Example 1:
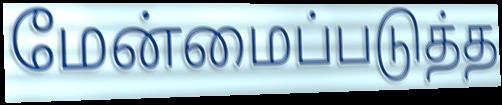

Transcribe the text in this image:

மேன்மைப்படுத்த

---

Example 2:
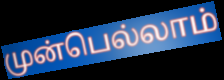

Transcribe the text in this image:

முன்பெல்லாம்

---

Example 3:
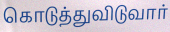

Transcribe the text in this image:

கொடுத்துவிடுவார்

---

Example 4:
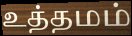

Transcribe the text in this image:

உத்தமம்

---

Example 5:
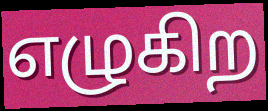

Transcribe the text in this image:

எழுகிற